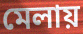
মেলায়